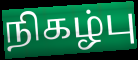
நிகழ்பு